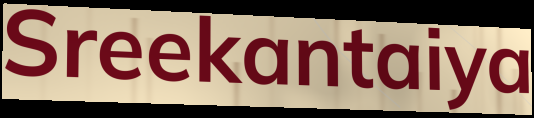
Sreekantaiya